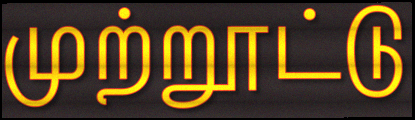
முற்றூட்டு